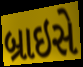
બ્રાઇસે